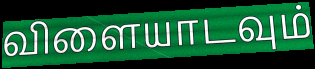
விளையாடவும்